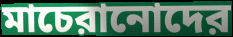
মাচেরানোদের